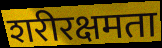
शरीरक्षमता